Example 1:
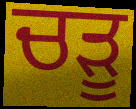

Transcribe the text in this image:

ਚੜੂ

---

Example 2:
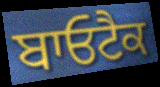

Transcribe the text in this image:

ਬਾਓਟੈਕ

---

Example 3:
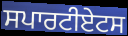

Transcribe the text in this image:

ਸਪਾਰਟੀਏਟਸ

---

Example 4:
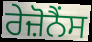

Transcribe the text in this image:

ਰੇਜ਼ੋਨੈਂਸ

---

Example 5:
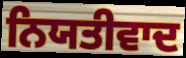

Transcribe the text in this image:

ਨਿਯਤੀਵਾਦ